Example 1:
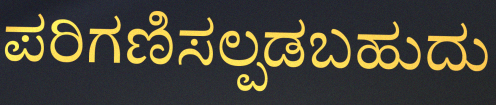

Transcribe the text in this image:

ಪರಿಗಣಿಸಲ್ಪಡಬಹುದು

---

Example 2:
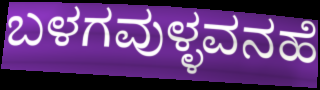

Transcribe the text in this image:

ಬಳಗವುಳ್ಳವನಹೆ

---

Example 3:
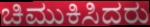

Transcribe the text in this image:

ಚಿಮುಕಿಸಿದರು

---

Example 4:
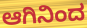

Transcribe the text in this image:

ಆಗಿನಿಂದ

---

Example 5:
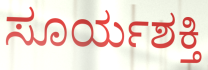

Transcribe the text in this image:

ಸೂರ್ಯಶಕ್ತಿ